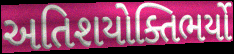
અતિશયોક્તિભર્યો